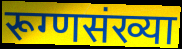
रूग्णसंख्या